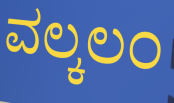
ವಲ್ಕಲಂ